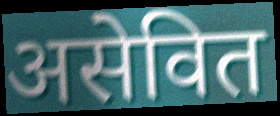
असेवित